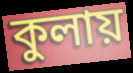
কুলায়